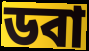
ডবা